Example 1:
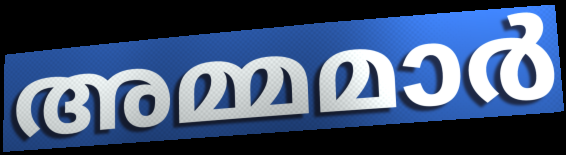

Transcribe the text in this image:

അമ്മമാർ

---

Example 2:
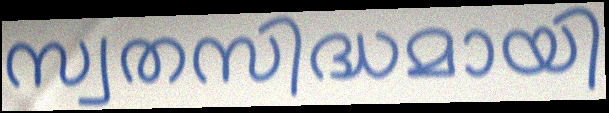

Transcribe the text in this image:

സ്വതസിദ്ധമായി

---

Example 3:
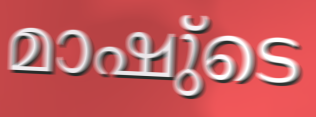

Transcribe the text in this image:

മാഷു്ടെ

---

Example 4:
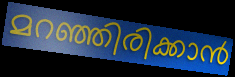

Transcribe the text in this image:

മറഞ്ഞിരിക്കാൻ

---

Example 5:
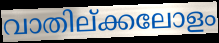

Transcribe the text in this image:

വാതില്ക്കലോളം